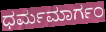
ಧರ್ಮಮಾರ್ಗಂ